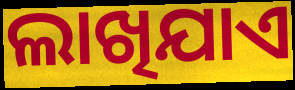
ଲାଖିଯାଏ